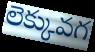
లెక్కువగ